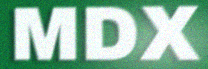
MDX